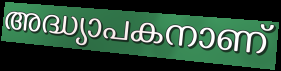
അദ്ധ്യാപകനാണ്